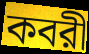
কবরী